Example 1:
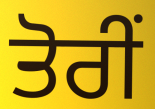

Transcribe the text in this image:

ਤੋਰੀਂ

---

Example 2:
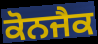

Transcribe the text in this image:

ਕੋਨਜੈਕ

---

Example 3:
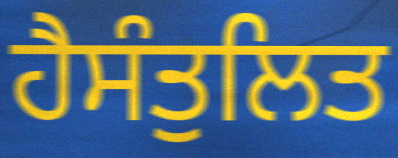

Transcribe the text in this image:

ਹੈਸੰਤੁਲਿਤ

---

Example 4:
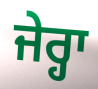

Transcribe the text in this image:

ਜੇਰ੍ਹਾ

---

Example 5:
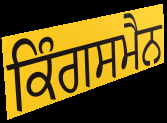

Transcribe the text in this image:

ਕਿੰਗਸਮੈਨ